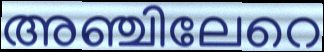
അഞ്ചിലേറെ